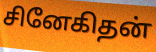
சினேகிதன்